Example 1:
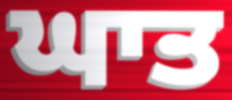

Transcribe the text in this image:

ਘਾਤ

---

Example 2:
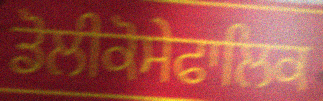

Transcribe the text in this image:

ਡੋਲੀਕੋਸੇਫਾਲਿਕ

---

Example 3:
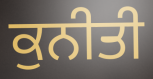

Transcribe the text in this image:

ਕੁਨੀਤੀ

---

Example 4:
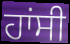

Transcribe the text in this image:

ਹਾਂਸੀ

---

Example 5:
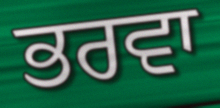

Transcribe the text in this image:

ਭਰਵਾ